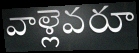
వాళ్లెవరూ